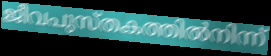
ജീവപുസ്തകത്തിൽനിന്ന്